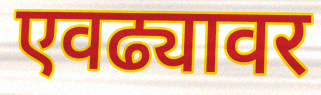
एवढ्यावर